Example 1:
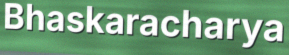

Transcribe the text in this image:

Bhaskaracharya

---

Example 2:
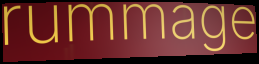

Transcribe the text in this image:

rummage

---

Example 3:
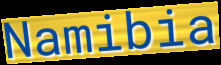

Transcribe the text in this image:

Namibia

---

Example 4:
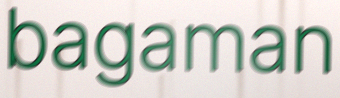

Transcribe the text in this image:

bagaman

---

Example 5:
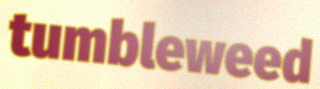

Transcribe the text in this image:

tumbleweed